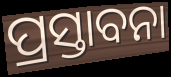
ପ୍ରସ୍ତାବନା